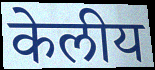
केलीय